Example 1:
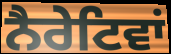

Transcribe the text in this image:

ਨੈਰੇਟਿਵਾਂ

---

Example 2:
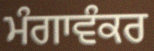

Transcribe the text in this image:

ਮੰਗਾਵੰਕਰ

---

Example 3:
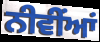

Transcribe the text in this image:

ਨੀਵੀਂਆਂ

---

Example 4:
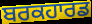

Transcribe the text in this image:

ਬਰਕਹਾਰਡ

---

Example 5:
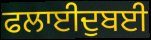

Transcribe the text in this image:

ਫਲਾਈਦੁਬਈ